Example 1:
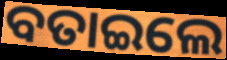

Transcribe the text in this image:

ବତାଇଲେ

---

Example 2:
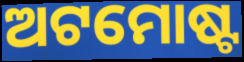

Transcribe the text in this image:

ଅଟମୋଷ୍ଟ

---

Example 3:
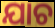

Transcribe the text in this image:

ଯାଚ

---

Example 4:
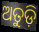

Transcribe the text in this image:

ଅତୁଡ଼ି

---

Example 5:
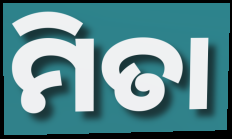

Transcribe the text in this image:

ମିତା